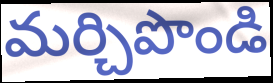
మర్చిపొండి